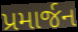
પ્રમાર્જન